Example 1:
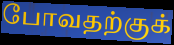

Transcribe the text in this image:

போவதற்குக்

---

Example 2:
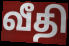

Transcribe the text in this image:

வீதி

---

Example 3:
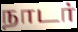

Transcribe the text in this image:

நாடர்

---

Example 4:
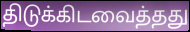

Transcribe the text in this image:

திடுக்கிடவைத்தது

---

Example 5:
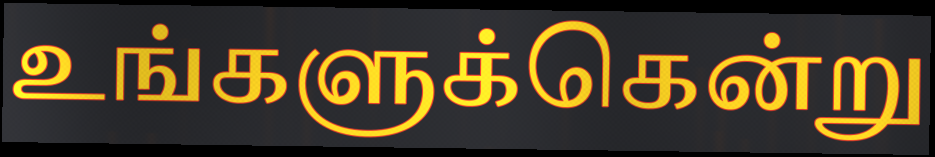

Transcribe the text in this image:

உங்களுக்கென்று